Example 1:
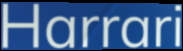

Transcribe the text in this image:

Harrari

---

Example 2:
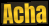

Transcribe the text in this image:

Acha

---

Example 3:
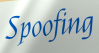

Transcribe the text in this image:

Spoofing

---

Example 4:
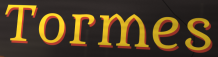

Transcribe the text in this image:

Tormes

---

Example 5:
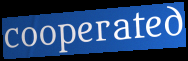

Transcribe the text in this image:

cooperated